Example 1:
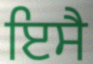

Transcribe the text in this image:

ਇਸੈ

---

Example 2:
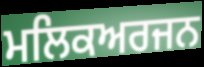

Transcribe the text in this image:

ਮਲਿਕਅਰਜਨ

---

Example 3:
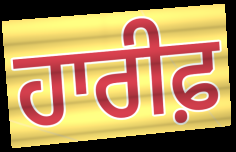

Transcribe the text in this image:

ਹਾਰੀਫ਼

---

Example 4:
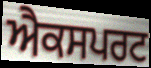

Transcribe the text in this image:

ਐਕਸਪਰਟ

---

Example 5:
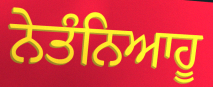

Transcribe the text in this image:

ਨੇਤੰਨਿਆਹੂ